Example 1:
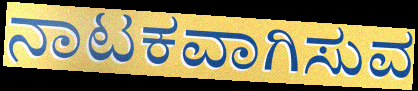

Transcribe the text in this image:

ನಾಟಕವಾಗಿಸುವ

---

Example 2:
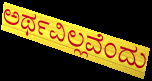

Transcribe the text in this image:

ಅರ್ಥವಿಲ್ಲವೆಂದು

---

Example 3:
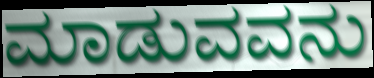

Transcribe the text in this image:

ಮಾಡುವವನು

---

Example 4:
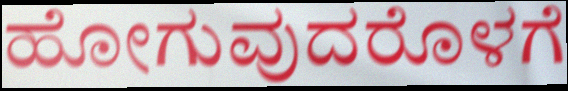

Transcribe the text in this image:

ಹೋಗುವುದರೊಳಗೆ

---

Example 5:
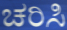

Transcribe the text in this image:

ಚರಿಸಿ